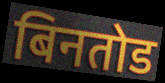
बिनतोड